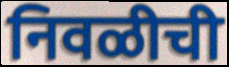
निवळीची